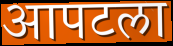
आपटला